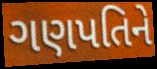
ગણપતિને